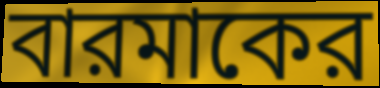
বারমাকের